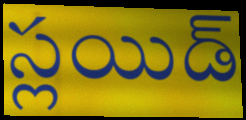
స్లయిడ్